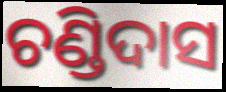
ଚଣ୍ଡିଦାସ